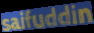
saifuddin